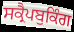
ਸਕ੍ਰੈਪਬੁਕਿੰਗ